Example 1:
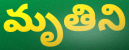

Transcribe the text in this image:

మృతిని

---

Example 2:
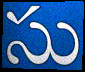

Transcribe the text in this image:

సు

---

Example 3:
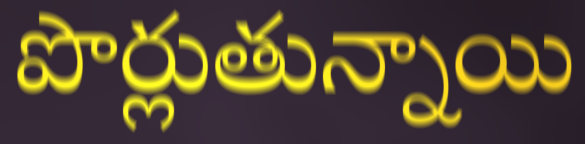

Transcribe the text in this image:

పొర్లుతున్నాయి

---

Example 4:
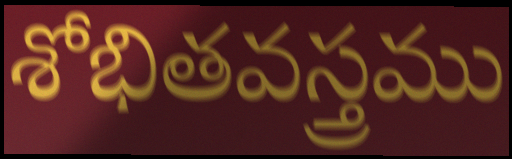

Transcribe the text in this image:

శోభితవస్త్రము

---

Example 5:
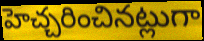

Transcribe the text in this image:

హెచ్చరించినట్లుగా